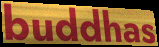
buddhas